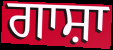
ਗਾਸ਼ਾ